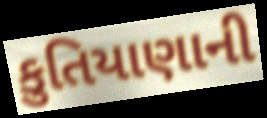
કુતિયાણાની